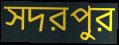
সদরপুর